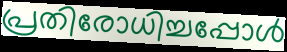
പ്രതിരോധിച്ചപ്പോൾ